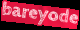
bareyode